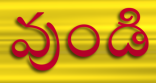
వుండి